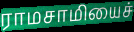
ராமசாமியைச்